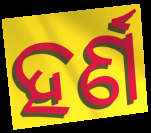
ହର୍ଣ